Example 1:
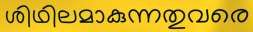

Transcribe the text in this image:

ശിഥിലമാകുന്നതുവരെ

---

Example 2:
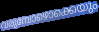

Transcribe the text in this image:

വരുമ്പോഴൊക്കെയും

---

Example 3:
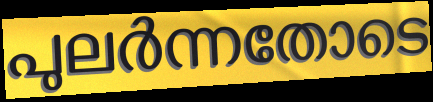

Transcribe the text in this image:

പുലർന്നതോടെ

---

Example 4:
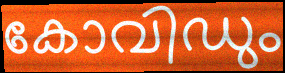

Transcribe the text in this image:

കോവിഡും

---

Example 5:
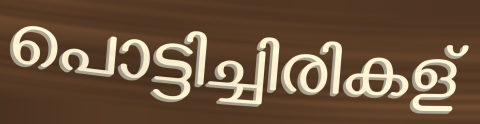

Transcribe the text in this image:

പൊട്ടിച്ചിരികള്